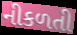
નીકળતી